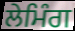
ਲੇਮਿੰਗ